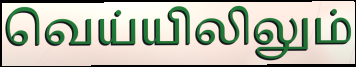
வெய்யிலிலும்